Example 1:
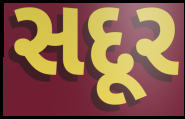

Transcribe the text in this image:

સદૂર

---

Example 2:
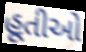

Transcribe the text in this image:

હૂતીઓ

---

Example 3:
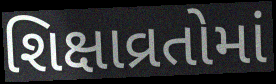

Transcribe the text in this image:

શિક્ષાવ્રતોમાં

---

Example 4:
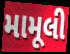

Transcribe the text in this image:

મામૂલી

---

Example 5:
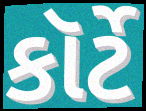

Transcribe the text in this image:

કૉર્ટે